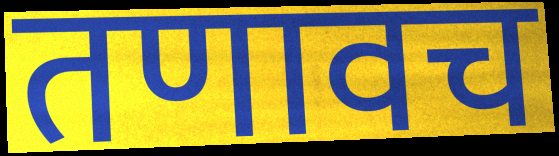
तणावच